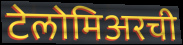
टेलोमिअरची